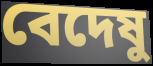
বেদেষু